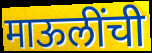
माऊलींची